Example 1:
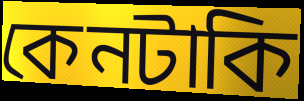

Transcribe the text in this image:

কেনটাকি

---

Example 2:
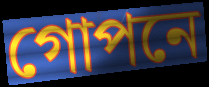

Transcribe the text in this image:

গোপনে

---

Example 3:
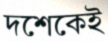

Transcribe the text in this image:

দশেকেই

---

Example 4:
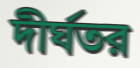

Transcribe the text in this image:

দীর্ঘতর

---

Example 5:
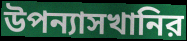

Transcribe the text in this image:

উপন্যাসখানির